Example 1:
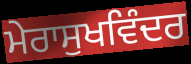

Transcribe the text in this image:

ਮੇਰਾਸੁਖਵਿੰਦਰ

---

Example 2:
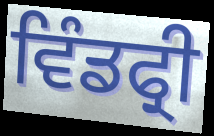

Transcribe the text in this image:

ਵਿੰਡਫ੍ਰੀ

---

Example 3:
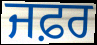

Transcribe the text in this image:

ਜਫ਼ਰ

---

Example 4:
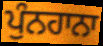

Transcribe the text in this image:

ਪੁੰਨਹਾਨਾ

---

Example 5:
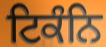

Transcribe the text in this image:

ਟਿਕੰਨਿ